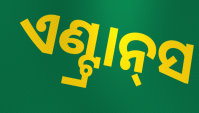
ଏଣ୍ଟ୍ରାନ୍‍ସ